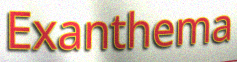
Exanthema